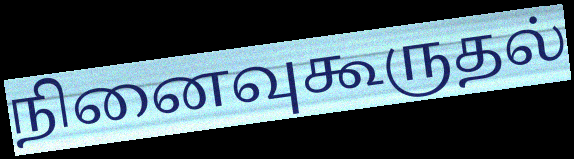
நினைவுகூருதல்